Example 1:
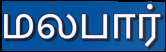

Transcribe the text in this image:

மலபார்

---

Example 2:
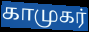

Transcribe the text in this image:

காமுகர்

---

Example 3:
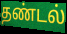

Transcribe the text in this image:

தண்டல்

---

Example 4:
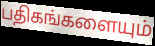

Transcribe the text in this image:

பதிகங்களையும்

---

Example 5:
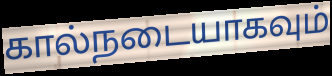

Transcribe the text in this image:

கால்நடையாகவும்